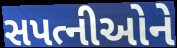
સપત્નીઓને